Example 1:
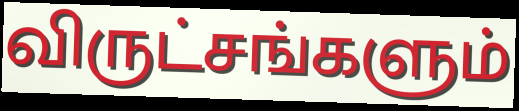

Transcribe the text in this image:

விருட்சங்களும்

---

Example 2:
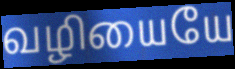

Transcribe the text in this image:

வழியையே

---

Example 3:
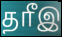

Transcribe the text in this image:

தரீஇ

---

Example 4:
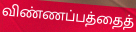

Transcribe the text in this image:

விண்ணப்பத்தைத்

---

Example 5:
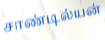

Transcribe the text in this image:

சாண்டில்யன்